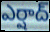
ఎర్షాద్